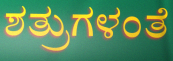
ಶತ್ರುಗಳಂತೆ